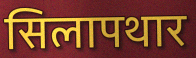
सिलापथार